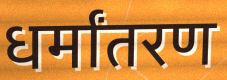
धर्मांतरण